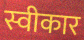
स्‍वीकार